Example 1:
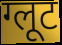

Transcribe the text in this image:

ग्लूट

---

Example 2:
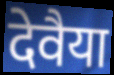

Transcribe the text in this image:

देवैया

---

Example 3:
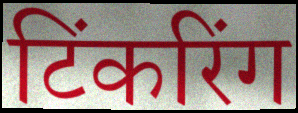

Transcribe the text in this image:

टिंकरिंग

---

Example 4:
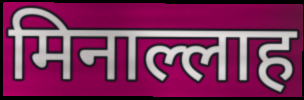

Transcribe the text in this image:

मिनाल्लाह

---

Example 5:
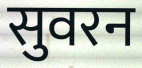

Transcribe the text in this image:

सुवरन